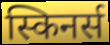
स्किनर्स